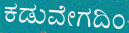
ಕಡುವೇಗದಿಂ